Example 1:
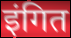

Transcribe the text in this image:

इंगित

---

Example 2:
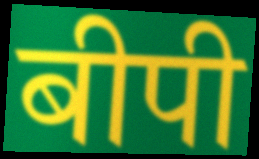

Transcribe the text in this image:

बीपी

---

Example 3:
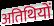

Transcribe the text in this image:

अतिथियों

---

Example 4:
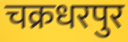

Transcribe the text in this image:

चक्रधरपुर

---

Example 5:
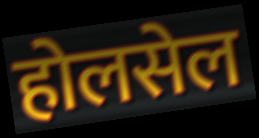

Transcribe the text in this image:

होलसेल